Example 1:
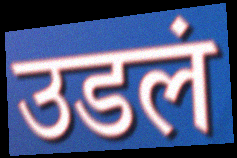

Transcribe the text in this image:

उडलं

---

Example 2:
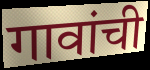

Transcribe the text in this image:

गावांची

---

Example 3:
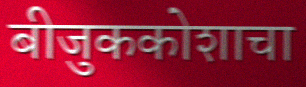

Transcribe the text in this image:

बीजुककोशाचा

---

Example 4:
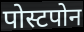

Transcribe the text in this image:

पोस्टपोन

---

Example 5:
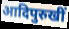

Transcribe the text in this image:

आदिपुरुखीं